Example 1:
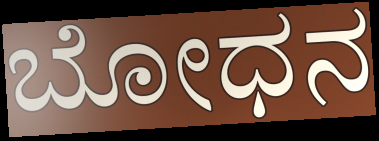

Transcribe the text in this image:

ಬೋಧನ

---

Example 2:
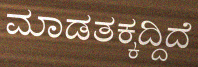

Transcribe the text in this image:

ಮಾಡತಕ್ಕದ್ದಿದೆ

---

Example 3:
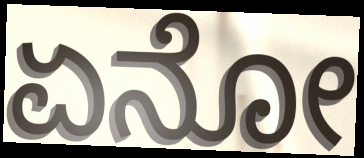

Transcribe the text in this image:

ಏನೋ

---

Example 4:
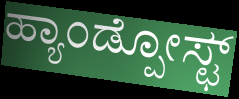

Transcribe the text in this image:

ಹ್ಯಾಂಡ್ಪೋಸ್ಟ್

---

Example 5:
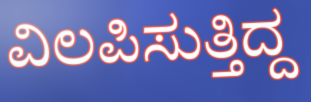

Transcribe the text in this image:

ವಿಲಪಿಸುತ್ತಿದ್ದ